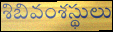
శిబివంశస్థులు